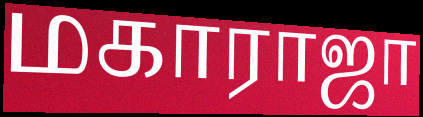
மகாராஜா